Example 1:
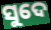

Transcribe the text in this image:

ସୁଦେ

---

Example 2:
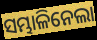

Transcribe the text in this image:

ସମ୍ଭାଳିନେଲା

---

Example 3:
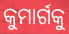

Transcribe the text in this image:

କୁମାର୍ଗକୁ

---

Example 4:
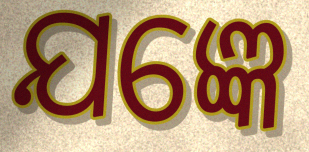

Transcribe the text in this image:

ଯଜ୍ଞେ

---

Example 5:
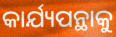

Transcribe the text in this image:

କାର୍ଯ୍ୟପନ୍ଥାକୁ